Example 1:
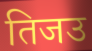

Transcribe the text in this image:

तिजउ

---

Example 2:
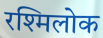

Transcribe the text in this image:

रश्मिलोक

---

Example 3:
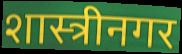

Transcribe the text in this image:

शास्त्रीनगर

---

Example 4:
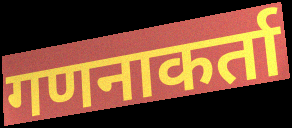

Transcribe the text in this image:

गणनाकर्ता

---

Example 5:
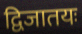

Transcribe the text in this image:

द्विजातयः